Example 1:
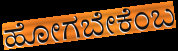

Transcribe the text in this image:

ಹೋಗಬೇಕೆಂಬ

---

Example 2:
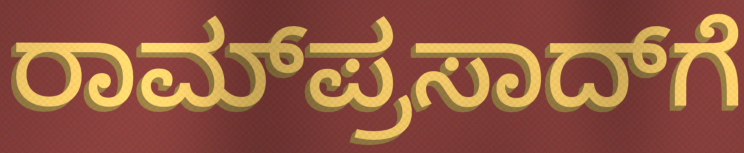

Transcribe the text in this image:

ರಾಮ್‌ಪ್ರಸಾದ್‌ಗೆ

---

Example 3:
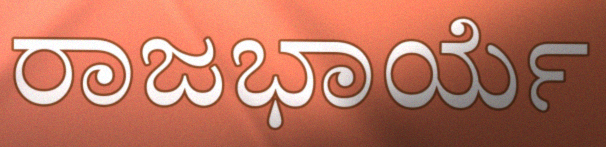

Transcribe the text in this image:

ರಾಜಭಾರ್ಯೆ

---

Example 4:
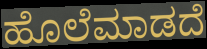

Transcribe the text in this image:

ಹೊಲೆಮಾಡದೆ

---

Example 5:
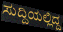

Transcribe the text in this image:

ಸುದ್ದಿಯಲ್ಲಿದ್ದ